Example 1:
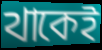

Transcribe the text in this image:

থাকেই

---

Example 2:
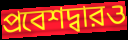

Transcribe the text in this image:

প্রবেশদ্বারও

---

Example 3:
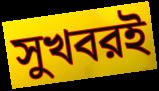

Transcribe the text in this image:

সুখবরই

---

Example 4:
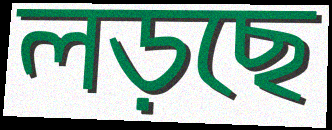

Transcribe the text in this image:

লড়ছে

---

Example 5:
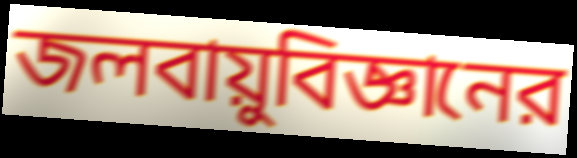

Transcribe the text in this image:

জলবায়ুবিজ্ঞানের